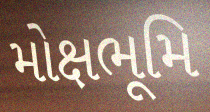
મોક્ષભૂમિ